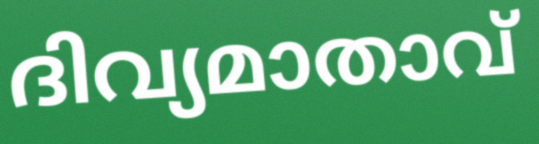
ദിവ്യമാതാവ്